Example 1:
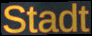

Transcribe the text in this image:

Stadt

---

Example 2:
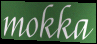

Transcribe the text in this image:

mokka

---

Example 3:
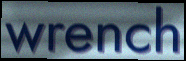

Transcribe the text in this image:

wrench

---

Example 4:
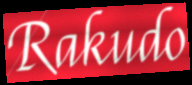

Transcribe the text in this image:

Rakudo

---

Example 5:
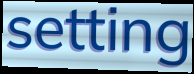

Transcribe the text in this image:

setting